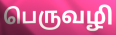
பெருவழி